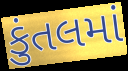
કુંતલમાં